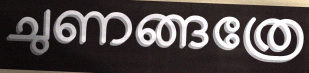
ചുണങ്ങത്രേ